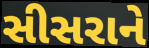
સીસરાને